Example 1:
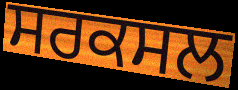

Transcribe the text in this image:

ਸਰਕਸਲ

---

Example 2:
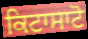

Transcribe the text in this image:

ਕਿਟਾਸਾਟੋ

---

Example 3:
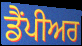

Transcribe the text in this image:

ਡੈਂਪੀਅਰ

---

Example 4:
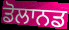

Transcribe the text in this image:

ਡੋਲਾਨਡ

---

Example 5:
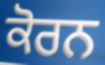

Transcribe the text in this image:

ਕੋਰਨ